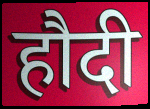
हौदी